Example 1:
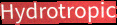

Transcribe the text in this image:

Hydrotropic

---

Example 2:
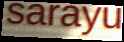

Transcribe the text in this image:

sarayu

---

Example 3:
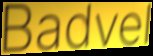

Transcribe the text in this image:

Badvel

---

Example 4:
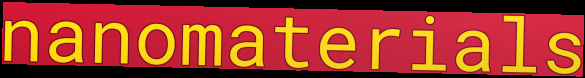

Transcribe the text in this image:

nanomaterials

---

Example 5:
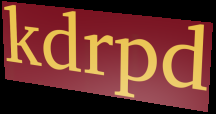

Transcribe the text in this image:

kdrpd